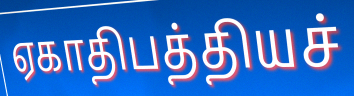
ஏகாதிபத்தியச்